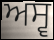
ਅਸ੍ਵ